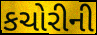
કચોરીની